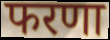
फरणा